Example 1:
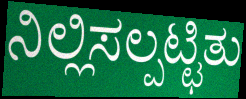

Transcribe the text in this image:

ನಿಲ್ಲಿಸಲ್ಪಟ್ಟಿತು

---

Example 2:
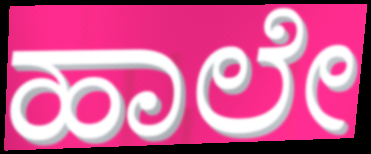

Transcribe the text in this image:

ಹಾಲೇ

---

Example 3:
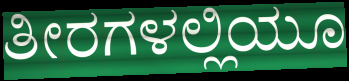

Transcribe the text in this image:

ತೀರಗಳಲ್ಲಿಯೂ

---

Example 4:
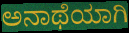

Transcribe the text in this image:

ಅನಾಥೆಯಾಗಿ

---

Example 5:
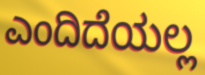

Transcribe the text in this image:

ಎಂದಿದೆಯಲ್ಲ